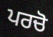
ਪਰਚੋ